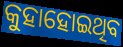
କୁହାହୋଇଥିବ